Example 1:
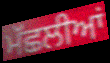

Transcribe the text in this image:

ਮੱਛਲੀਆਂ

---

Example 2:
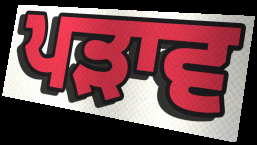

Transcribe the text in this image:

ਪੜਾਵ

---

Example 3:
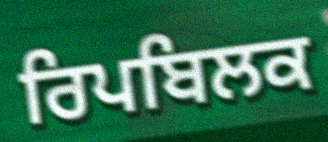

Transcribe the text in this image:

ਰਿਪਬਿਲਕ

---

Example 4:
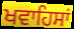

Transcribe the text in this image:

ਖਵਾਹਿਸਾਂ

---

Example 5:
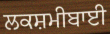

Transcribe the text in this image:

ਲਕਸ਼ਮੀਬਾਈ